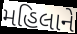
મહિલાને